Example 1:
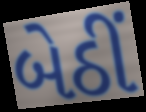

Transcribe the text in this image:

બેઠીં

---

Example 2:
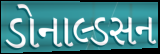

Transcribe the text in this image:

ડોનાલ્ડસન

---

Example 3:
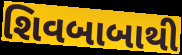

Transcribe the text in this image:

શિવબાબાથી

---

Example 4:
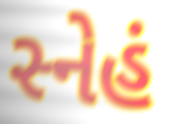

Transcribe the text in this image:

સ્નેહં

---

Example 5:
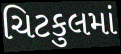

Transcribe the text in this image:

ચિટકુલમાં